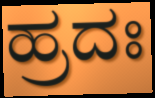
ಹ್ರದಃ